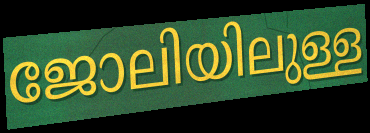
ജോലിയിലുള്ള